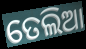
ତେଲିଆ